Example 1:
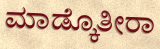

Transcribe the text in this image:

ಮಾಡ್ಕೊತೀರಾ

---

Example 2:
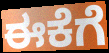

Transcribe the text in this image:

ಈಕೆಗೆ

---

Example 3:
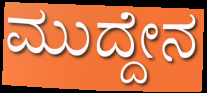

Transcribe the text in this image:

ಮುದ್ದೇನ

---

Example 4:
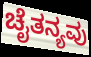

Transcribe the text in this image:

ಚೈತನ್ಯವು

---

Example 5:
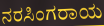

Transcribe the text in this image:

ನರಸಿಂಗರಾಯ